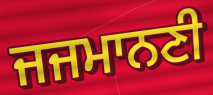
ਜਜਮਾਨਣੀ